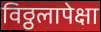
विठ्ठलापेक्षा